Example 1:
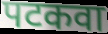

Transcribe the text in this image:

पटकवा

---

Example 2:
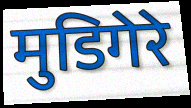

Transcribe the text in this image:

मुडिगेरे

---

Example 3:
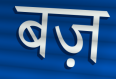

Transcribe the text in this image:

बज़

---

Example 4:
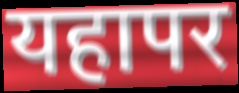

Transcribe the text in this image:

यहापर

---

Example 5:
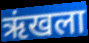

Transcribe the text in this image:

ऋंखला